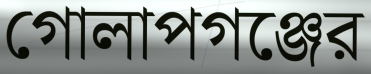
গোলাপগঞ্জের